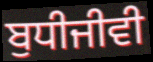
ਬੁਧੀਜੀਵੀ